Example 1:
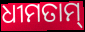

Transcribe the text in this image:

ଧୀମତାମ୍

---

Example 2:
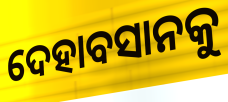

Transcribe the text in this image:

ଦେହାବସାନକୁ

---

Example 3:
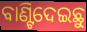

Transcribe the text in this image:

ବାଣ୍ଟିଦେଇଛୁ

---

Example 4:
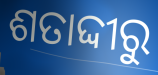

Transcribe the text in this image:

ଶତାଦ୍ଦୀରୁ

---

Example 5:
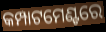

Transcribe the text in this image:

କମ୍ପାଟମେଣ୍ଟରେ